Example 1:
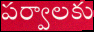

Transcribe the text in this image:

పర్వాలకు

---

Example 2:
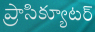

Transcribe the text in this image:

ప్రాసిక్యూటర్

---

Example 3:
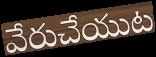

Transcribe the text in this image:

వేరుచేయుట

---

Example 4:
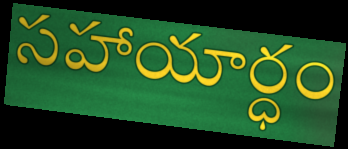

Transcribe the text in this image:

సహాయార్ధం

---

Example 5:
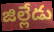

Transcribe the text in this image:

జిల్లేడు